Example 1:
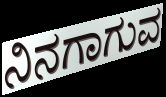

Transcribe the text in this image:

ನಿನಗಾಗುವ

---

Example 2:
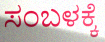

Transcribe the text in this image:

ಸಂಬಳಕ್ಕೆ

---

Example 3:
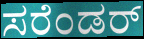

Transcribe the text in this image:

ಸರೆಂಡರ್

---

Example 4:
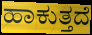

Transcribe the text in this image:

ಹಾಕುತ್ತದೆ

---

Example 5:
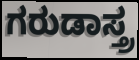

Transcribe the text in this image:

ಗರುಡಾಸ್ತ್ರ